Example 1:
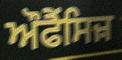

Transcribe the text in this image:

ਔਫੈਂਸਿਜ਼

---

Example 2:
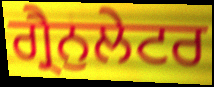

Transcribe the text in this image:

ਗ੍ਰੈਨੁਲੇਟਰ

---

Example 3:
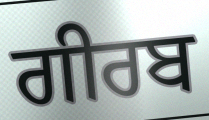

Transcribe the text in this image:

ਗੀਰਬ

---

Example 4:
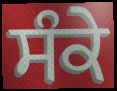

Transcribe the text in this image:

ਸੰਕੇ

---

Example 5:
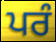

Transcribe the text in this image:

ਪਰੰ